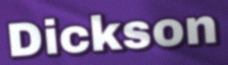
Dickson